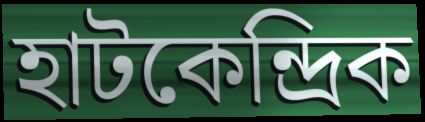
হাটকেন্দ্রিক